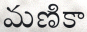
మణికా